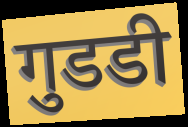
गुडडी